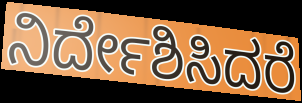
ನಿರ್ದೇಶಿಸಿದರೆ